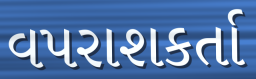
વપરાશકર્તા